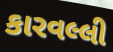
કારવલ્લી